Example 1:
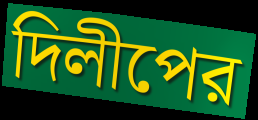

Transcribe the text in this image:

দিলীপের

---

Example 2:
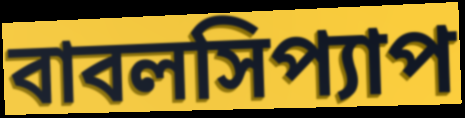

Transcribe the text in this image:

বাবলসিপ্যাপ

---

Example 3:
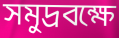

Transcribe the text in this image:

সমুদ্রবক্ষে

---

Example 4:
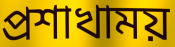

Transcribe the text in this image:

প্রশাখাময়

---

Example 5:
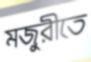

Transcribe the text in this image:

মজুরীতে